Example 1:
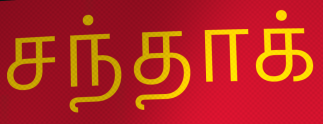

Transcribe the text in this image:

சந்தாக்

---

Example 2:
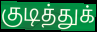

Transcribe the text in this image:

குடித்துக்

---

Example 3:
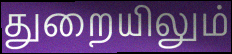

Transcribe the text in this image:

துறையிலும்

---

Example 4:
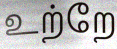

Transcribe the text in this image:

உற்றே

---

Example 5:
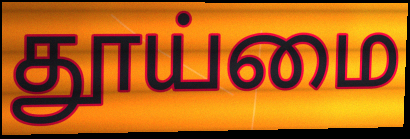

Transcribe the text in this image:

தூய்மை